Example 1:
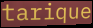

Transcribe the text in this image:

tarique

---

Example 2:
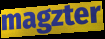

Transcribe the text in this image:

magzter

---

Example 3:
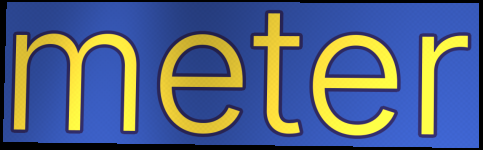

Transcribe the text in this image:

meter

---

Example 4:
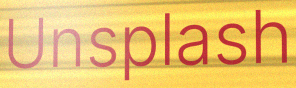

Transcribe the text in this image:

Unsplash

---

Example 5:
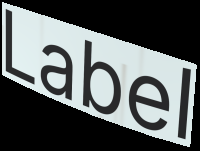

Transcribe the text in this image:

Label